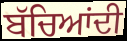
ਬੱਚਿਆਂਦੀ